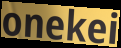
onekei